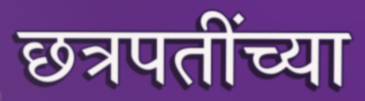
छत्रपतींच्या